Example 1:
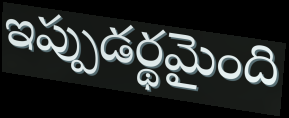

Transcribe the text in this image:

ఇప్పుడర్థమైంది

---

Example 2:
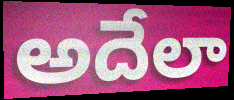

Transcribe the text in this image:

అదేలా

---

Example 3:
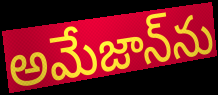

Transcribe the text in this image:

అమేజాన్‌ను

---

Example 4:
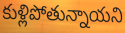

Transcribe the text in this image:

కుళ్లిపోతున్నాయని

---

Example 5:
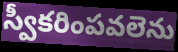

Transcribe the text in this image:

స్వీకరింపవలెను